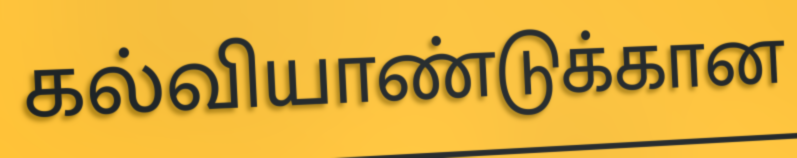
கல்வியாண்டுக்கான